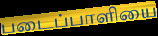
படைப்பாளியை